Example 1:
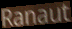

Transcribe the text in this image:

Ranaut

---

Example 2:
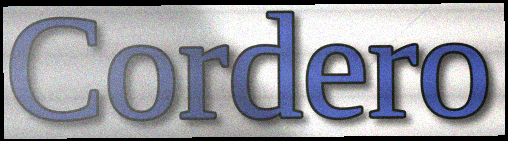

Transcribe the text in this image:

Cordero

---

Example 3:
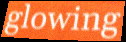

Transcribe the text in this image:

glowing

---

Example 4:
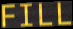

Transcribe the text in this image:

FILL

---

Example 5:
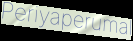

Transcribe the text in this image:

Periyaperumal